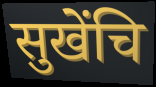
सुखेंचि